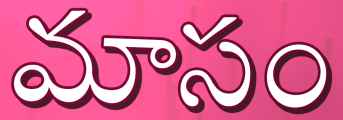
మాసం